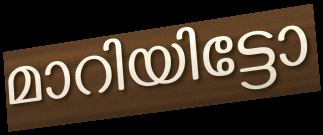
മാറിയിട്ടോ